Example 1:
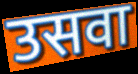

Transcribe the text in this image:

उसवा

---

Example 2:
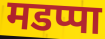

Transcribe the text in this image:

मडप्पा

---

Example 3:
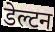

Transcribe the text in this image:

डेल्टन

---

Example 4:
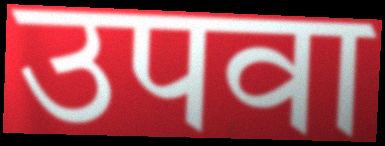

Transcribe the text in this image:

उपवा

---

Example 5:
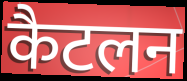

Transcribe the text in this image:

कैटलन